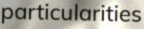
particularities